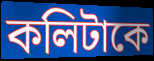
কলিটাকে